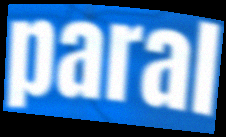
paral